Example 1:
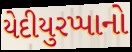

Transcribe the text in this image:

યેદીયુરપ્પાનો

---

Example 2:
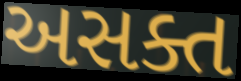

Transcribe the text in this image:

અસક્ત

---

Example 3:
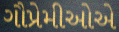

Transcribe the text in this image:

ગૌપ્રેમીઓએ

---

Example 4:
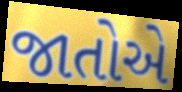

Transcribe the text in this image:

જાતોએ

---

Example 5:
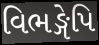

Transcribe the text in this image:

વિભઙ્ગેપિ